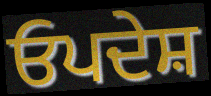
ਓਪਦੇਸ਼